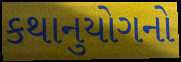
કથાનુયોગનો